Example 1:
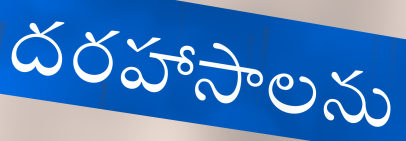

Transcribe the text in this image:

దరహాసాలను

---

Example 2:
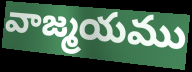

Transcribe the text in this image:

వాజ్మయము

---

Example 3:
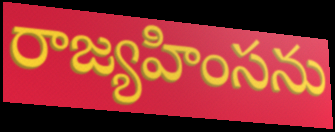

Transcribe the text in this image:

రాజ్యహింసను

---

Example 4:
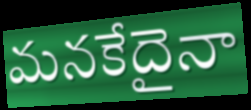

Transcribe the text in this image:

మనకేదైనా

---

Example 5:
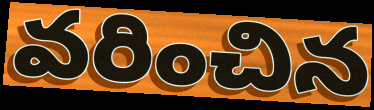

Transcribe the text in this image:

వరించిన